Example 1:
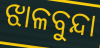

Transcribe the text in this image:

ଝାଳବୁନ୍ଦା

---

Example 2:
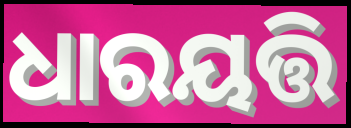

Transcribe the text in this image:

ଧାରୟତ୍ତି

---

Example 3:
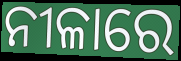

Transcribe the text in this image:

ନୀଳାରେ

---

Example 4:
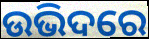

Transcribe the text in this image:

ଉଭିଦରେ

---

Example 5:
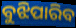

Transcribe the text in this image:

ବୁଝିପାରିବ